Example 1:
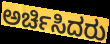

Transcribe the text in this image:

ಅರ್ಚಿಸಿದರು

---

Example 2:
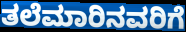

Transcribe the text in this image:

ತಲೆಮಾರಿನವರಿಗೆ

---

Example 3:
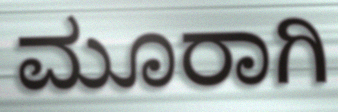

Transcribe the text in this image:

ಮೂರಾಗಿ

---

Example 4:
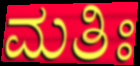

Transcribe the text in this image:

ಮತಿಃ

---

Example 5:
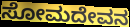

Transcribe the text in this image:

ಸೋಮದೇವನ